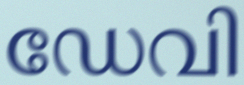
ഡേവി